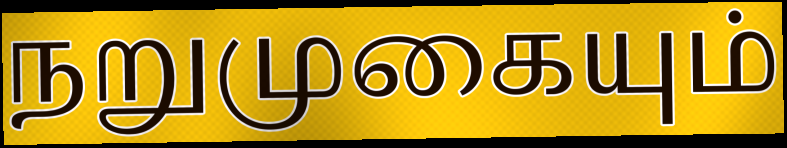
நறுமுகையும்